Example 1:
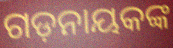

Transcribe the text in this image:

ଗଡ଼ନାୟକଙ୍କ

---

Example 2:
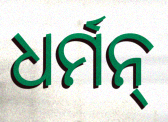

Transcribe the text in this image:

ଧର୍ମନ୍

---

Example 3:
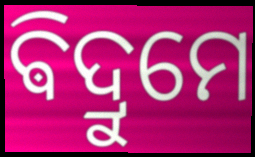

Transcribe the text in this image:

ଵିଦ୍ରୁମେ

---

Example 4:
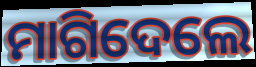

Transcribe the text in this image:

ମାଗିଦେଲେ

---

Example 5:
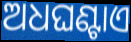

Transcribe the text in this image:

ଅଧଘଣ୍ଟାଏ